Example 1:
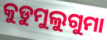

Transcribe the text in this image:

କୁଡୁମୁଲୁଗୁମା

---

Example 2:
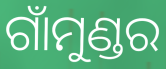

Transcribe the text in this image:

ଗାଁମୁଣ୍ଡର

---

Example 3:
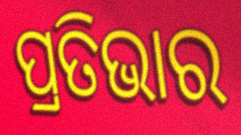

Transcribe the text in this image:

ପ୍ରତିଭାର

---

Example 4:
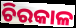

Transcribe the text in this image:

ଚିରକାଳ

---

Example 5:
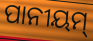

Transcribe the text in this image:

ପାନୀୟମ୍